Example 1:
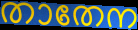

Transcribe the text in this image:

താതേന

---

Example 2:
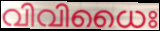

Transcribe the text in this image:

വിവിധൈഃ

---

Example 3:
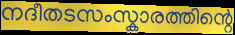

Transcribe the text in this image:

നദീതടസംസ്കാരത്തിന്റെ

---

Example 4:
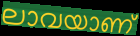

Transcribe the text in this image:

ലാവയാണ്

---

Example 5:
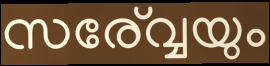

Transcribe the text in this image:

സര്വ്വേയും